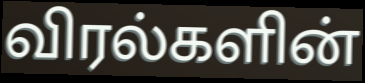
விரல்களின்